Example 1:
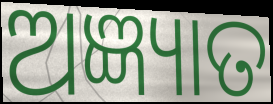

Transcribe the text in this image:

ଅଜ୍ଞ୍ୟାତ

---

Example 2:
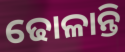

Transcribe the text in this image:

ଢୋଳାନ୍ତି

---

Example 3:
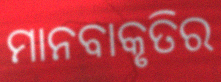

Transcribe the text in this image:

ମାନବାକୃତିର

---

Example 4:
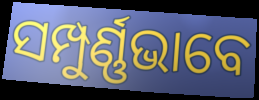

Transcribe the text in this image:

ସମ୍ପୁର୍ଣ୍ଣଭାବେ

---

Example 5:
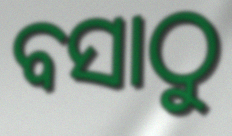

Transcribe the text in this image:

ବସାଠୁ